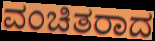
ವಂಚಿತರಾದ